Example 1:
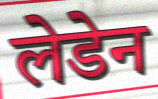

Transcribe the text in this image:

लेडेन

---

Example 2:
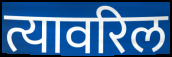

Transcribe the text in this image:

त्यावरिल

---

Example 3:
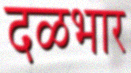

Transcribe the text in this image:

दळभार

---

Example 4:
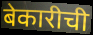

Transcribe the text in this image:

बेकारीची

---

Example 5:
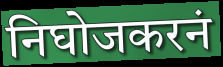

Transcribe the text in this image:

निघोजकरनं